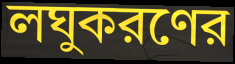
লঘুকরণের